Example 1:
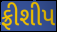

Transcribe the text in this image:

ફ્રીશીપ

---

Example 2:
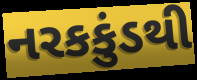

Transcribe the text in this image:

નરકકુંડથી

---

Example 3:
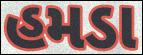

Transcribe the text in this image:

હમડા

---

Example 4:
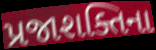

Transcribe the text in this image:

પ્રજાશક્તિના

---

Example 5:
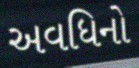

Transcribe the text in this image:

અવધિનો